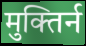
मुक्तिर्न